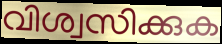
വിശ്വസിക്കുക